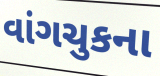
વાંગચુકના